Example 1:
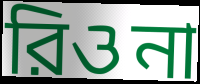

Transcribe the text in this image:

রিওনা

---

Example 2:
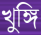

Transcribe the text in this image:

খুঙ্গি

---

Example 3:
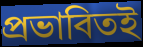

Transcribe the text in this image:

প্রভাবিতই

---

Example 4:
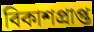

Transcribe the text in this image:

বিকাশপ্রাপ্ত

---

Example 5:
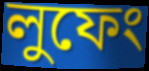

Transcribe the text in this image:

লুফেং